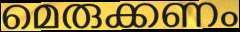
മെരുക്കണം